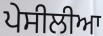
ਪੇਸੀਲੀਆ